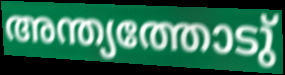
അന്ത്യത്തോടു്